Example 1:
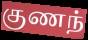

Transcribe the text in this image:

குணந்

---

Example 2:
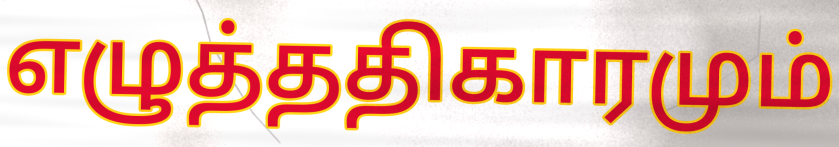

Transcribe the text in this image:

எழுத்ததிகாரமும்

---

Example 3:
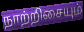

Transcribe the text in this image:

நாற்றிசையும்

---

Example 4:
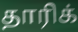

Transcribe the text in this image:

தாரிக்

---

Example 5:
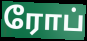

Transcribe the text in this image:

ரோப்